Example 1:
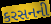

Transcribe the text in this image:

કરસનની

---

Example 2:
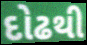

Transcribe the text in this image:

દોઢથી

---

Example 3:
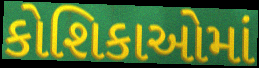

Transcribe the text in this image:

કોશિકાઓમાં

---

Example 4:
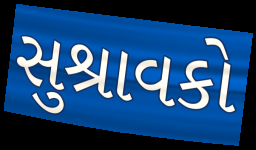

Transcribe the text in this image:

સુશ્રાવકો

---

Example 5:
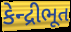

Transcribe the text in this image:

કેન્દ્રીભૂત